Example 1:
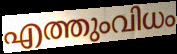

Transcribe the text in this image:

എത്തുംവിധം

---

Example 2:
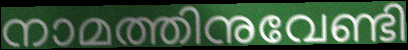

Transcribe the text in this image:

നാമത്തിനുവേണ്ടി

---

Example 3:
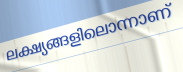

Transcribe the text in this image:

ലക്ഷ്യങ്ങളിലൊന്നാണ്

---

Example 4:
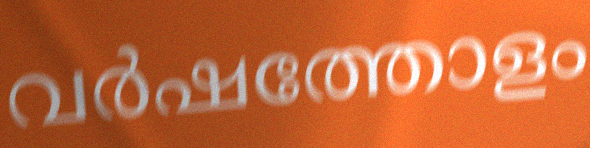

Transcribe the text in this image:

വർഷത്തോളം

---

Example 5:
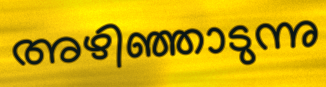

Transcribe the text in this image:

അഴിഞ്ഞാടുന്നു